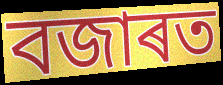
বজাৰত